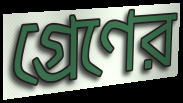
গ্রেণের